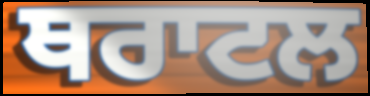
ਥਰਾਟਲ